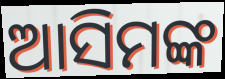
ଆସିମଙ୍କ